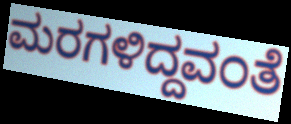
ಮರಗಳಿದ್ದವಂತೆ